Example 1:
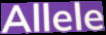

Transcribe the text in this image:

Allele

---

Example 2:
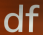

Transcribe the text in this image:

df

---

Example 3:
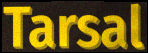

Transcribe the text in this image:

Tarsal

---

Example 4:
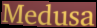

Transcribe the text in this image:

Medusa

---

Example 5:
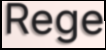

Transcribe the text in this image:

Rege